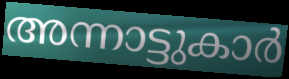
അന്നാട്ടുകാർ